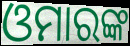
ଓମାରଙ୍କ